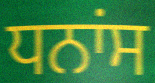
ਧਨਾਂਸ